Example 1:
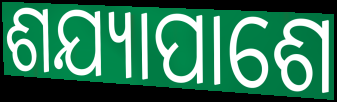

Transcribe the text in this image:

ଶଯ୍ୟାପାଶେ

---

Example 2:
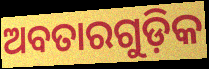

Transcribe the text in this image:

ଅବତାରଗୁଡ଼ିକ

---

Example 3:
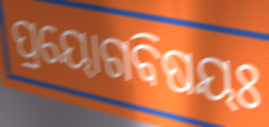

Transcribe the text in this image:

ପ୍ରୟୋଗବିଷୟଃ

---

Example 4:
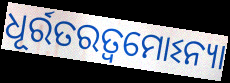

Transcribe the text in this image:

ଧୂର୍ରତରତ୍ୱମୋଽନ୍ୟା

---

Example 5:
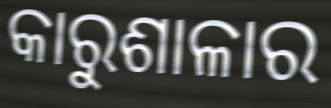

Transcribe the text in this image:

କାରୁଶାଳାର